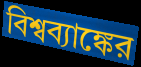
বিশ্বব্যাঙ্কের